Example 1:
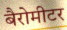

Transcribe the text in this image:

बैरोमीटर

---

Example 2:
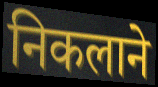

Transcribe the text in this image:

निकलाने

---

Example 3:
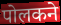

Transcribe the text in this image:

पोलकने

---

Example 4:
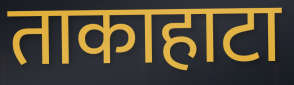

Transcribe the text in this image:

ताकाहाटा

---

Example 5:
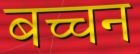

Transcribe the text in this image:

बच्‍चन